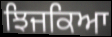
ਝਿਜਕਿਆ